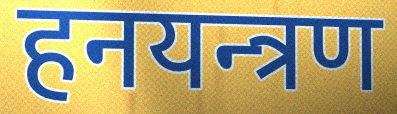
हनयन्त्रण